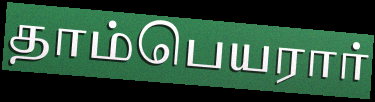
தாம்பெயரார்